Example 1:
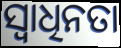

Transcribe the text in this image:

ସ୍ଵାଧିନତା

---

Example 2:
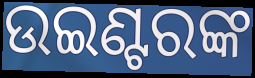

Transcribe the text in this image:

ଉଇଣ୍ଟରଙ୍କ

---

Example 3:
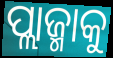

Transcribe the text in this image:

ପ୍ଲାଜ୍ମାକୁ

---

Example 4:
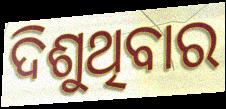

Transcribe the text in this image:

ଦିଶୁଥିବାର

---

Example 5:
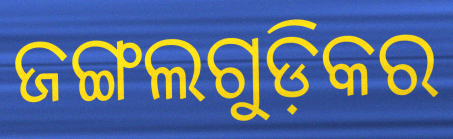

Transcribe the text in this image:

ଜଙ୍ଗଲଗୁଡ଼ିକର